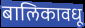
बालिकावधू